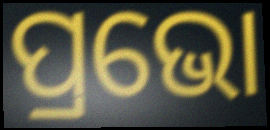
ପ୍ରଭୋ